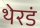
थेरडं